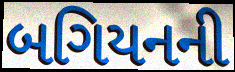
બગિયનની